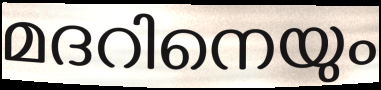
മദറിനെയും